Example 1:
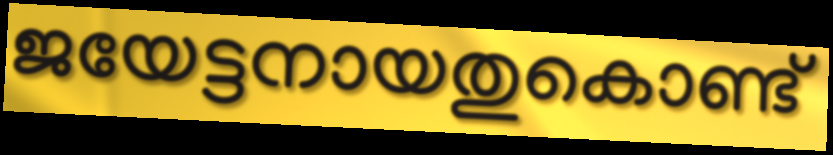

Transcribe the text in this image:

ജയേട്ടനായതുകൊണ്ട്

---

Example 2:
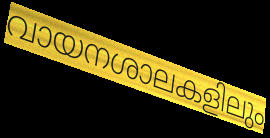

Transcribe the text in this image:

വായനശാലകളിലും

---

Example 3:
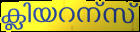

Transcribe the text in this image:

ക്ലിയറന്സ്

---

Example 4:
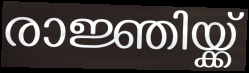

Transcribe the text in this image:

രാജ്ഞിയ്ക്ക്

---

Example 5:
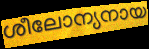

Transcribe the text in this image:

ശീലോന്യനായ